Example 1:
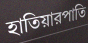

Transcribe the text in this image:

হাতিয়ারপাতি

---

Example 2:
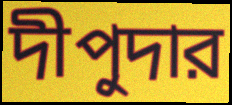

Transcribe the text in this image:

দীপুদার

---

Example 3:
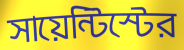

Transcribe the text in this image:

সায়েন্টিস্টের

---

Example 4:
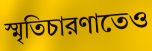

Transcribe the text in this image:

স্মৃতিচারণাতেও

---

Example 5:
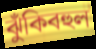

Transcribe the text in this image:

ঝুঁকিবহুল